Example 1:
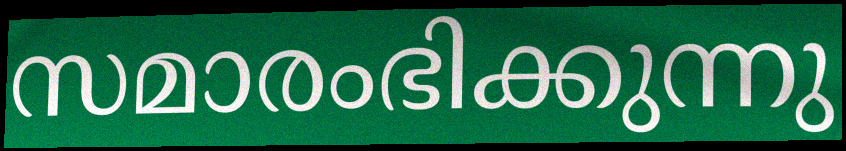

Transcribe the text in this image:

സമാരംഭിക്കുന്നു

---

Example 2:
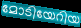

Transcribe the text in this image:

മോടിയേറിയ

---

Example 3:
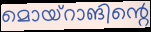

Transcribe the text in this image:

മൊയ്റാങിന്റെ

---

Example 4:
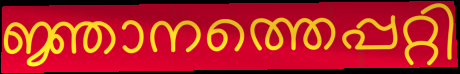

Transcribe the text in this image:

ജ്ഞാനത്തെപ്പറ്റി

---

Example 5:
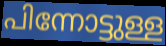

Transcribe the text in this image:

പിന്നോട്ടുള്ള